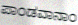
ಪಾಂಡವಾನಾಂ